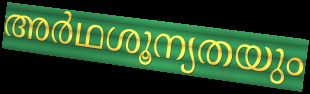
അർഥശൂന്യതയും